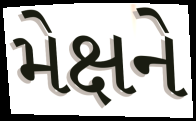
મેક્ષને